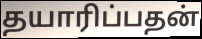
தயாரிப்பதன்